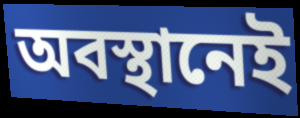
অবস্থানেই